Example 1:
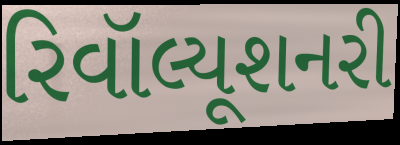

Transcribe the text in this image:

રિવૉલ્યૂશનરી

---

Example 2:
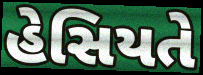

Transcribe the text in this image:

હેસિયતે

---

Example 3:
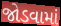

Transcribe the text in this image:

જોડવામાં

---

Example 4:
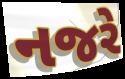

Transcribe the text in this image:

નજરે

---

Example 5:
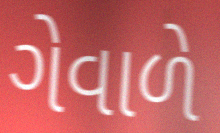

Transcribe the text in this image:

ગેવાળે